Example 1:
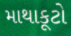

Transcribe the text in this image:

માથાકૂટો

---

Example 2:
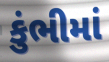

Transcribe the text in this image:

કુંભીમાં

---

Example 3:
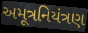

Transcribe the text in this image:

અમૂત્રનિયંત્રણ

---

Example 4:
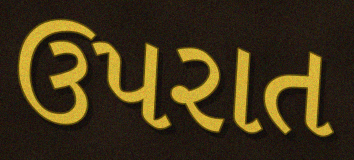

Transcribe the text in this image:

ઉપરાત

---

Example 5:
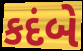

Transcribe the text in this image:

કદંબે